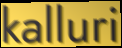
kalluri